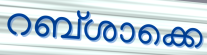
റബ്ശാക്കെ